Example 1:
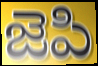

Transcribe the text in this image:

జెపి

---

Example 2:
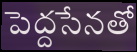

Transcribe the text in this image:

పెద్దసేనతో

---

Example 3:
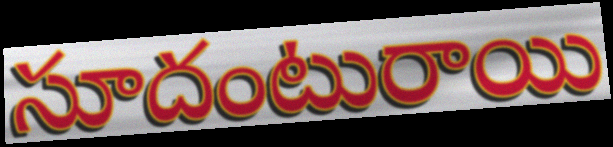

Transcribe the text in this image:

సూదంటురాయి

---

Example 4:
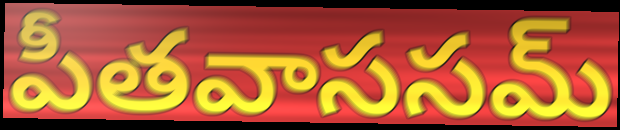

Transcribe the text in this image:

పీతవాససమ్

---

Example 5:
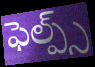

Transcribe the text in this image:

ఫెల్ప్స్